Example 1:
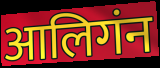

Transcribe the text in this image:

आलिगंन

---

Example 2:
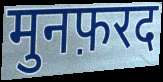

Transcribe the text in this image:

मुनफ़रद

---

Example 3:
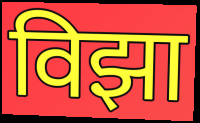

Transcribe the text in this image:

विझा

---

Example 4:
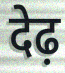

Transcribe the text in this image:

देढ़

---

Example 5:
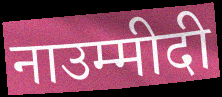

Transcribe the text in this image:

नाउम्मीदी